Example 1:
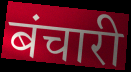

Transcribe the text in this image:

बंचारी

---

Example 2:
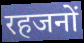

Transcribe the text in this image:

रहजनों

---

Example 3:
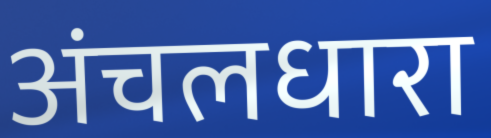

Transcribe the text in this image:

अंचलधारा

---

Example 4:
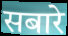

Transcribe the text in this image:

सबारे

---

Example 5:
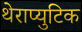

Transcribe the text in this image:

थेराप्युटिक